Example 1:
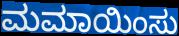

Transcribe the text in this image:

ಮಮಾಯಿಂಸು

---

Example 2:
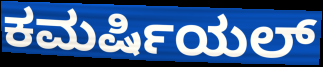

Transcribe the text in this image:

ಕಮರ್ಷಿಯಲ್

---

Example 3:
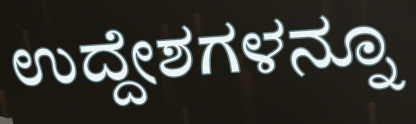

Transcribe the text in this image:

ಉದ್ದೇಶಗಳನ್ನೂ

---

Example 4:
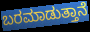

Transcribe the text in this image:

ಬರಮಾಡುತ್ತಾನೆ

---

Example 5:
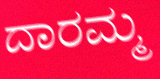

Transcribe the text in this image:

ದಾರಮ್ಮ